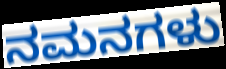
ನಮನಗಳು